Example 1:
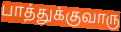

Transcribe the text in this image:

பாத்துக்குவாரு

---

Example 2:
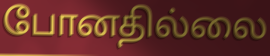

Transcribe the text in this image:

போனதில்லை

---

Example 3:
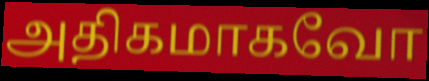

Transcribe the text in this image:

அதிகமாகவோ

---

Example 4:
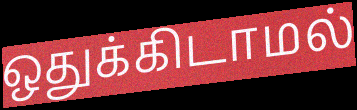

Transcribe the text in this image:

ஒதுக்கிடாமல்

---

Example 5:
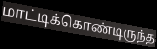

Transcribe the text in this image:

மாட்டிக்கொண்டிருந்த